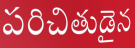
పరిచితుడైన